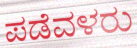
ಪಡೆವಳರು